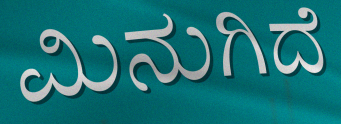
ಮಿನುಗಿದೆ